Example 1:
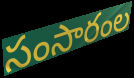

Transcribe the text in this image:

సంసారంల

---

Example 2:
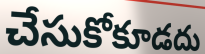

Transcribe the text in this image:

చేసుకోకూడదు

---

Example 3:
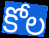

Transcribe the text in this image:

కోల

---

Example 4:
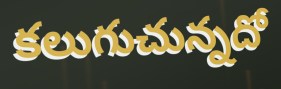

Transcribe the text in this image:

కలుగుచున్నదో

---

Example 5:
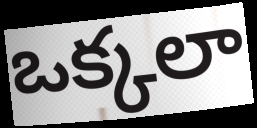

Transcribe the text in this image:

ఒక్కలా